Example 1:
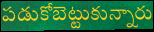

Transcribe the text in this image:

పడుకోబెట్టుకున్నారు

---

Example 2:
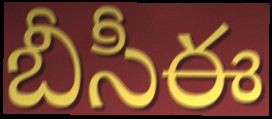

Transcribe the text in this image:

బీసీఈ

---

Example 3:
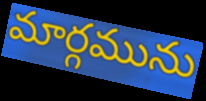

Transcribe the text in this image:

మార్గమును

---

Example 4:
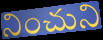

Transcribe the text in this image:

నించుని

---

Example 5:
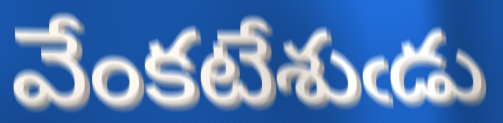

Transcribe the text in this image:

వేంకటేశుఁడు